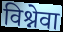
विश्नेवा